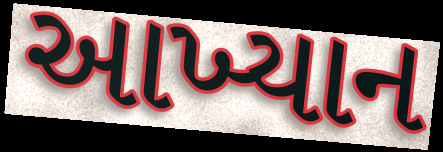
આખ્યાન